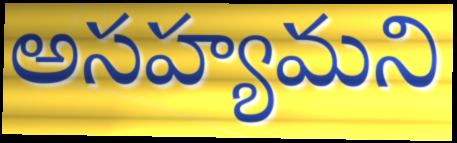
అసహ్యమని